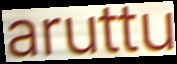
aruttu